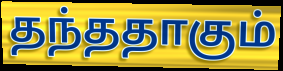
தந்ததாகும்